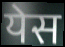
येस